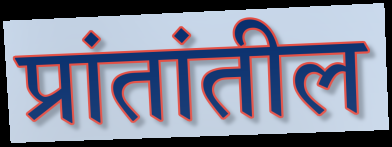
प्रांतांतील